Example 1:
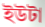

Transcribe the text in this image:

ইউটা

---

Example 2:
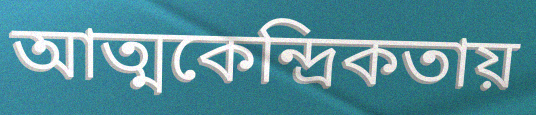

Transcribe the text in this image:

আত্মকেন্দ্রিকতায়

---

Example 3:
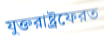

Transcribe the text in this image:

যুক্তরাষ্ট্রফেরত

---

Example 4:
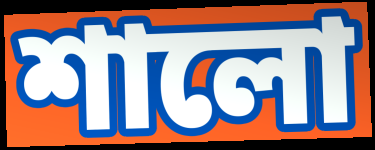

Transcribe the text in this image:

শালো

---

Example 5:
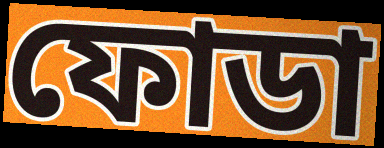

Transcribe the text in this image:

ফোডা